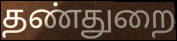
தண்துறை